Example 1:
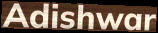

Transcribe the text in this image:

Adishwar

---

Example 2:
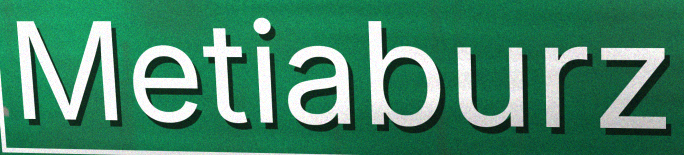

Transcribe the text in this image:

Metiaburz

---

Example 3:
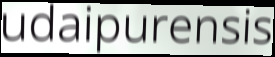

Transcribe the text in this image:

udaipurensis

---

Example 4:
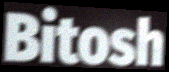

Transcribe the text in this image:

Bitosh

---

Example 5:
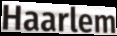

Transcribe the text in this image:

Haarlem